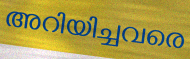
അറിയിച്ചവരെ